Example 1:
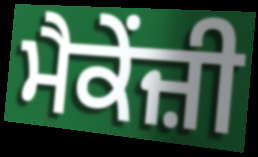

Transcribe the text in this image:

ਮੈਕੇਂਜ਼ੀ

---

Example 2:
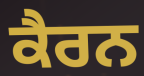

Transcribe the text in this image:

ਕੈਰਨ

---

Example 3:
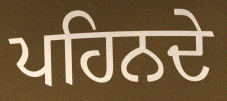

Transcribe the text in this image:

ਪਹਿਨਦੇ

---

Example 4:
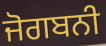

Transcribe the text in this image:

ਜੋਗਬਨੀ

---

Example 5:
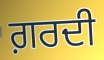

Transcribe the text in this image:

ਗ਼ਰਦੀ